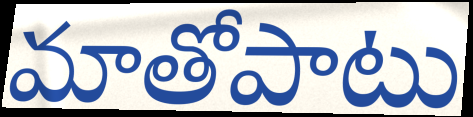
మాతోపాటు